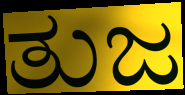
ತುಜ